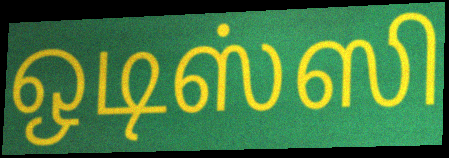
ஒடிஸ்ஸி